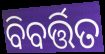
ବିବର୍ତ୍ତିତ